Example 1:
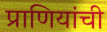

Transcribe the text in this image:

प्राणियांची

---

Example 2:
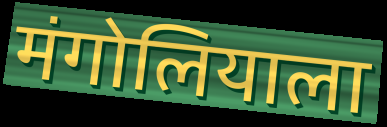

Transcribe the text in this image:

मंगोलियाला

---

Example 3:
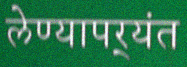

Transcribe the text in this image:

लेण्यापर्यंत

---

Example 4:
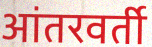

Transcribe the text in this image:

आंतरवर्ती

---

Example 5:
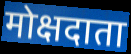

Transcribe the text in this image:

मोक्षदाता